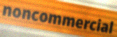
noncommercial